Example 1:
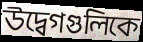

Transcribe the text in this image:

উদ্বেগগুলিকে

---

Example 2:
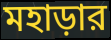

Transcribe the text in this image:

মহাড়ার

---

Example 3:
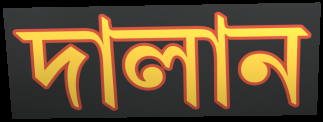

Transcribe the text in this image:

দালান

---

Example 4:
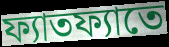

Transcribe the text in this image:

ফ্যাতফ্যাতে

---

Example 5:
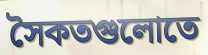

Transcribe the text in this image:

সৈকতগুলোতে